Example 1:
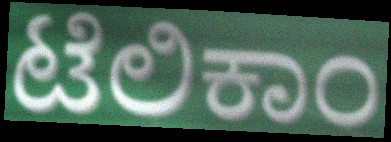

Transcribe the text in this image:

ಟೆಲಿಕಾಂ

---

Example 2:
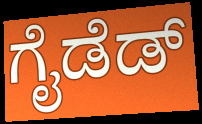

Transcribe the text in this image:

ಗೈಡೆಡ್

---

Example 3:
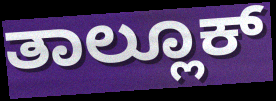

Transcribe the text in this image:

ತಾಲ್ಲೂಕ್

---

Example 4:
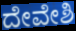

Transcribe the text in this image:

ದೇವೇಶಿ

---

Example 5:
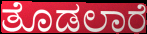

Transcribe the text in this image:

ತೊಡಲಾರೆ